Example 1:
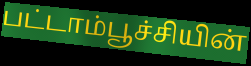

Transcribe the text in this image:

பட்டாம்பூச்சியின்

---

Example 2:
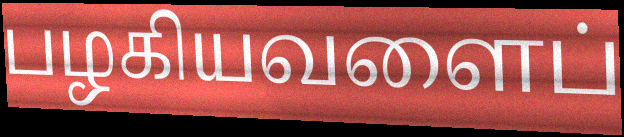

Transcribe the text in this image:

பழகியவளைப்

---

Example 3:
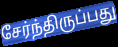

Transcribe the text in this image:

சேர்ந்திருப்பது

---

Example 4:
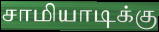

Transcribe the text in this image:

சாமியாடிக்கு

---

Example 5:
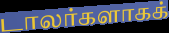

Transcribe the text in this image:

டாலர்களாகக்